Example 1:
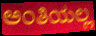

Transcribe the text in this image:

ಅಂತಿಯಲ್ಲ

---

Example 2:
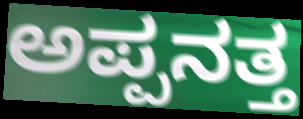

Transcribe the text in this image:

ಅಪ್ಪನತ್ತ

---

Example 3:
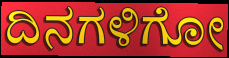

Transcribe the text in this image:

ದಿನಗಳಿಗೋ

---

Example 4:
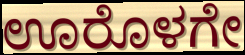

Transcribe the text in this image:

ಊರೊಳಗೇ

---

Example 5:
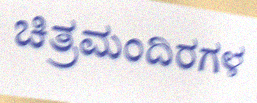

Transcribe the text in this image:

ಚಿತ್ರಮಂದಿರಗಳ